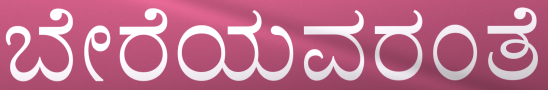
ಬೇರೆಯವರಂತೆ